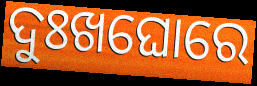
ଦୁଃଖଘୋରେ